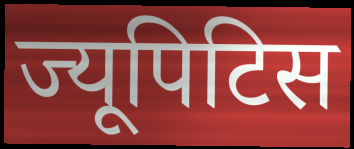
ज्यूपिटिस